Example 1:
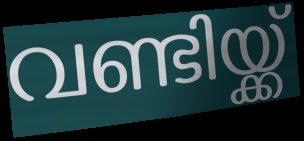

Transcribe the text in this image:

വണ്ടിയ്ക്ക്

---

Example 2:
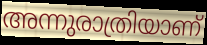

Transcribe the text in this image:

അന്നുരാത്രിയാണ്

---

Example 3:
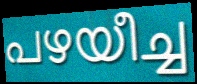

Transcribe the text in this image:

പഴയീച്ച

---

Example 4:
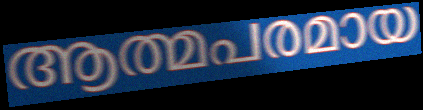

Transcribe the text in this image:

ആത്മപരമായ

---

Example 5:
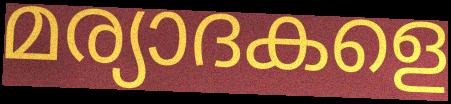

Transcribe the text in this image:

മര്യാദകളെ